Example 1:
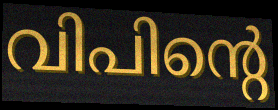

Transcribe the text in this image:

വിപിന്റെ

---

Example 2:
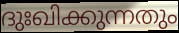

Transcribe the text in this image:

ദുഃഖിക്കുന്നതും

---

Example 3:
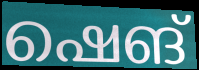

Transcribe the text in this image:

ഷെങ്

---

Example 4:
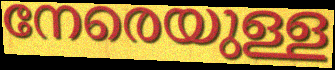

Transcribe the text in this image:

നേരെയുള്ള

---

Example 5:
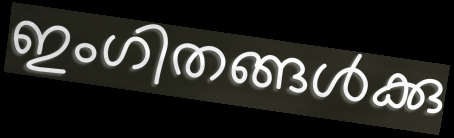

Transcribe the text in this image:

ഇംഗിതങ്ങൾക്കു